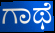
ಗಾಥೆ